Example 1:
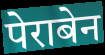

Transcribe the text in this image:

पेराबेन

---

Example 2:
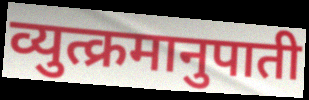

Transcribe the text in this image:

व्युत्क्रमानुपाती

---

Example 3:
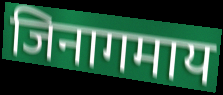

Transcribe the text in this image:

जिनागमाय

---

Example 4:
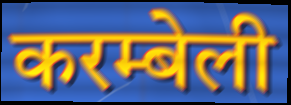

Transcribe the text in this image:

करम्बेली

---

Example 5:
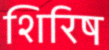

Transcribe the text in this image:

शिरिष